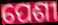
ପେଶୀ